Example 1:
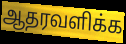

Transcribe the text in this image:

ஆதரவளிக்க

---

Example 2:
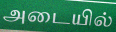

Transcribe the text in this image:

அடையில்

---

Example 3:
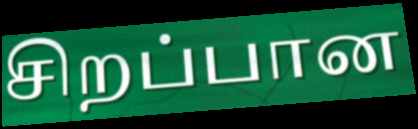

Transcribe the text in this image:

சிறப்பான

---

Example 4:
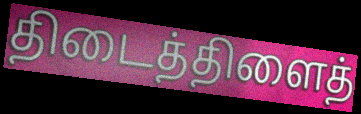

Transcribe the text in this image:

திடைத்திளைத்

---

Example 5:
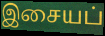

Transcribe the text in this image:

இசையப்